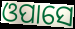
ଓପାସେ